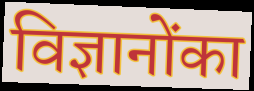
विज्ञानोंका